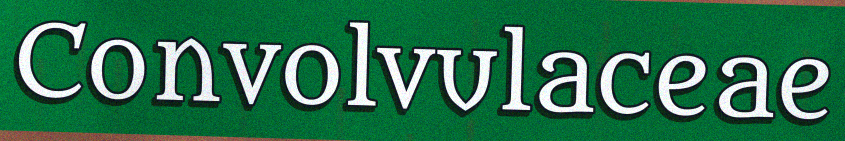
Convolvulaceae